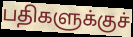
பதிகளுக்குச்